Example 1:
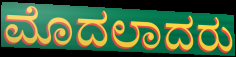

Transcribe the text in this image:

ಮೊದಲಾದರು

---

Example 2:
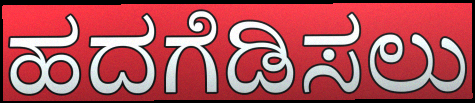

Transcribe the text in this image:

ಹದಗೆಡಿಸಲು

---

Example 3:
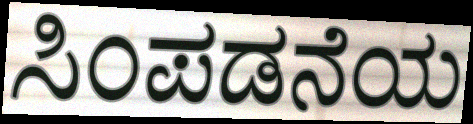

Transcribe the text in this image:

ಸಿಂಪಡನೆಯ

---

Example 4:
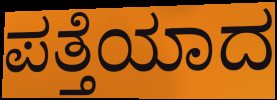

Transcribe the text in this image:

ಪತ್ತೆಯಾದ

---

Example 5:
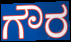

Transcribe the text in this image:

ಗೌರ